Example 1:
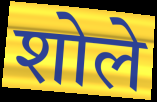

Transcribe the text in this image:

शोले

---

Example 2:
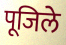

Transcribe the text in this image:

पूजिले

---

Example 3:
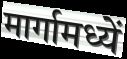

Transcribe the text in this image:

मार्गामध्यें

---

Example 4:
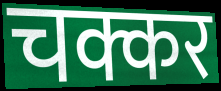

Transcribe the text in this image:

चक्कर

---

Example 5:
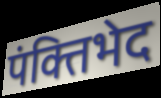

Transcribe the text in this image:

पंक्तिभेद